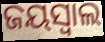
ଜୟସ୍ୱାଲ